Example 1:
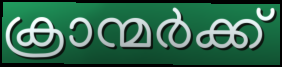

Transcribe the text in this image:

ക്രാന്മർക്ക്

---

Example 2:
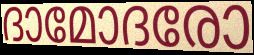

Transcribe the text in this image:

ദാമോദരോ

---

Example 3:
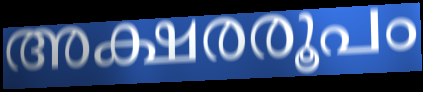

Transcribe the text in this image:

അക്ഷരരൂപം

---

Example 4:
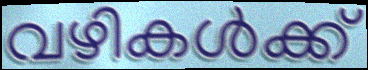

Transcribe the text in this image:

വഴികൾക്ക്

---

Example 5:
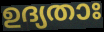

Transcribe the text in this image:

ഉദ്യതാഃ